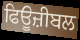
ਫਿਊਜ਼ੀਬਲ